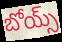
బోయ్స్